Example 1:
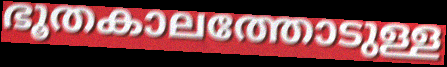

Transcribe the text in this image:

ഭൂതകാലത്തോടുള്ള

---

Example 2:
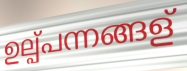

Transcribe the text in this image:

ഉല്പ്പന്നങ്ങള്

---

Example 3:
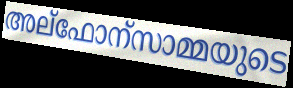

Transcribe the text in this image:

അല്ഫോന്സാമ്മയുടെ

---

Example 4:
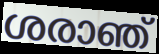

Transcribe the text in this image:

ശരാഞ്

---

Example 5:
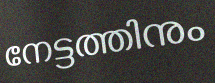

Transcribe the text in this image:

നേട്ടത്തിനും